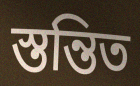
স্তন্তিত